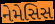
નેમેસિસ